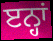
ੲਨ੍ਹਾਂ